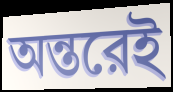
অন্তরেই